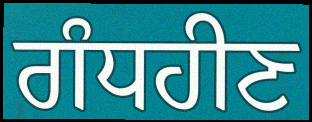
ਗੰਧਹੀਣ